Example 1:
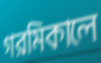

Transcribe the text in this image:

গরমিকালে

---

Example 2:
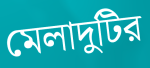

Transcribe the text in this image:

মেলাদুটির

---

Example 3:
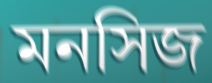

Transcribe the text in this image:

মনসিজ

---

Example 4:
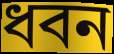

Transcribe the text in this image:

ধবন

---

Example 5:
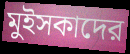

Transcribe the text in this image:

মুইসকাদের